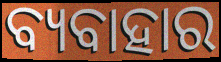
ବ୍ୟବାହାର